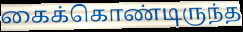
கைக்கொண்டிருந்த